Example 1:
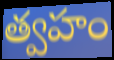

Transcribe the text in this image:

త్వహం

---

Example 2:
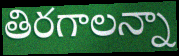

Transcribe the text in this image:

తిరగాలన్నా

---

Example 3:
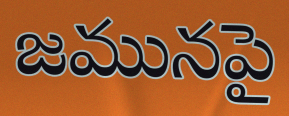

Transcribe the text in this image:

జమునపై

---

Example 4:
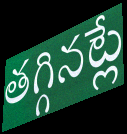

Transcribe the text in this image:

తగ్గినట్లే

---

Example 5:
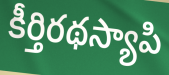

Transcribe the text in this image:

కీర్తిరథస్యాపి